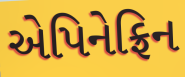
એપિનેફ્રિન